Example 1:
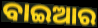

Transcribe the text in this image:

ବାଇଆର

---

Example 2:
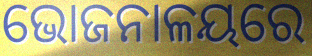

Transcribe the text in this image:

ଭୋଜନାଳୟରେ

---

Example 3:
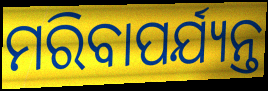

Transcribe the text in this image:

ମରିବାପର୍ଯ୍ୟନ୍ତ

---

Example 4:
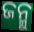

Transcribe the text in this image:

ଜନ୍ମୁ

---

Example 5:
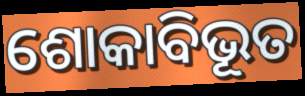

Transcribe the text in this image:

ଶୋକାବିଭୂତ